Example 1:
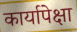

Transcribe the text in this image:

कार्यापेक्षा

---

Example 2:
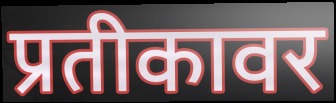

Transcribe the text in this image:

प्रतीकावर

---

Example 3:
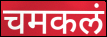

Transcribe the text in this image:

चमकलं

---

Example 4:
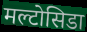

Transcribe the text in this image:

मल्टोसिडा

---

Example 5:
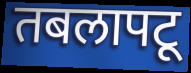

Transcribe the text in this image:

तबलापटू